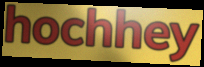
hochhey